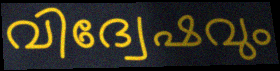
വിദ്വേഷവും